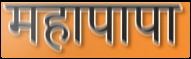
महापापा